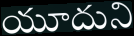
యూదుని